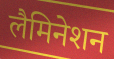
लैमिनेशन